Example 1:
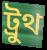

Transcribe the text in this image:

ট্রুথ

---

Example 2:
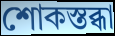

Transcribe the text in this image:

শোকস্তব্ধা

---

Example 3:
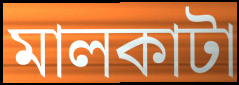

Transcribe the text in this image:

মালকাটা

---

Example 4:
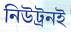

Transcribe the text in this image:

নিউট্রনই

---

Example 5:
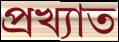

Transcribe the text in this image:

প্রখ্যাত